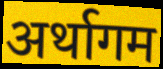
अर्थागम